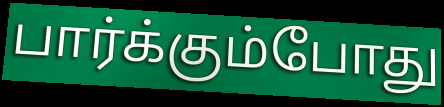
பார்க்கும்போது